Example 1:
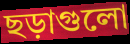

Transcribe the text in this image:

ছড়াগুলো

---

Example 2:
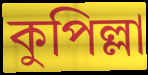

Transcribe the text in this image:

কুপিল্লা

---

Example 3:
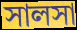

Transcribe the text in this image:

সালসা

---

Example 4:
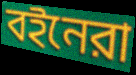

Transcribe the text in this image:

বইনেরা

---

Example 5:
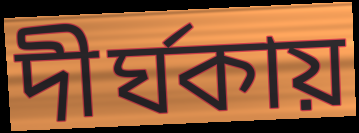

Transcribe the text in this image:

দীর্ঘকায়